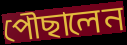
পৌছালেন